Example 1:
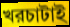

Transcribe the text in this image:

খরচাটাই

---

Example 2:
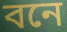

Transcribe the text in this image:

বনে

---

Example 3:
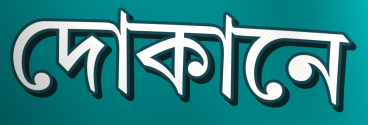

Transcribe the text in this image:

দোকানে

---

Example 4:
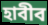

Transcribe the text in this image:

হাবীব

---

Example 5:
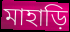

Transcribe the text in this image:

মাহাড়ি